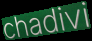
chadivi